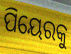
ପିୟେରକୁ